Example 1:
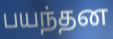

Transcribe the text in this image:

பயந்தன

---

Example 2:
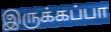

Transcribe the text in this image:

இருக்கப்பா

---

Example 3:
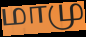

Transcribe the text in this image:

மாமு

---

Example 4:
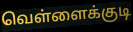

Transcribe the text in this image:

வெள்ளைக்குடி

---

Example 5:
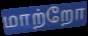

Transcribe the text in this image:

மாற்றோ